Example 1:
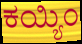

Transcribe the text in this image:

ಕಯ್ಯಿಂ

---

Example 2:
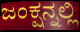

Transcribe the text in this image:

ಜಂಕ್ಷನ್ನಲ್ಲಿ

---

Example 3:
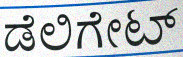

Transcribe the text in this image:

ಡೆಲಿಗೇಟ್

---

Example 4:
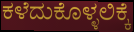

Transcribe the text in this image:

ಕಳೆದುಕೊಳ್ಳಲಿಕ್ಕೆ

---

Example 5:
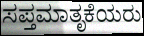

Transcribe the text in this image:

ಸಪ್ತಮಾತೃಕೆಯರು